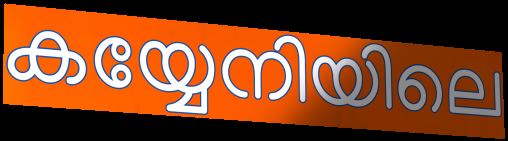
കയ്യേനിയിലെ